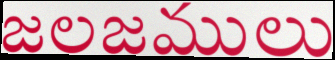
జలజములు